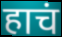
हाचं